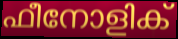
ഫീനോളിക്